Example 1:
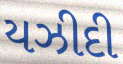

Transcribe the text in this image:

યઝીદી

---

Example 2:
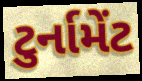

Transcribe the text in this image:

ટુર્નામેંટ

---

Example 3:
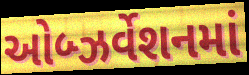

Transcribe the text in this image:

ઓબ્ઝર્વેશનમાં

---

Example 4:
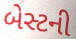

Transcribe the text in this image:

બેસ્ટની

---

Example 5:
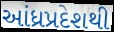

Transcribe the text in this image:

આંધ્રપ્રદેશથી